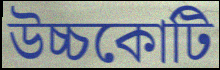
উচ্চকোটি